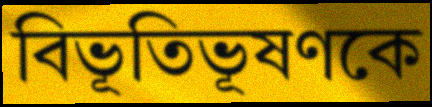
বিভূতিভূষণকে